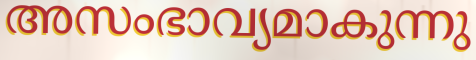
അസംഭാവ്യമാകുന്നു